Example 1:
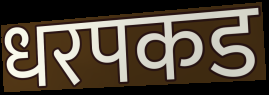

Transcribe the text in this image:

धरपकड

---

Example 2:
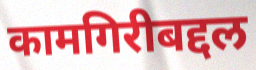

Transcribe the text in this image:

कामगिरीबद्दल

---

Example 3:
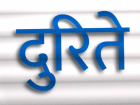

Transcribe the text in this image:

दुरिते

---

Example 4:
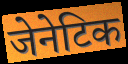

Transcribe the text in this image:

जेनेटिक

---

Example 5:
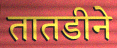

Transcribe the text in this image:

तातडीने